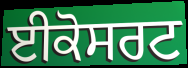
ਈਕੋਸਰਟ